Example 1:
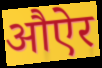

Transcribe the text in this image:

औऐर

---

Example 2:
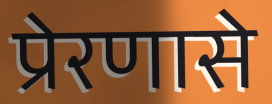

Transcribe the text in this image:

प्रेरणासे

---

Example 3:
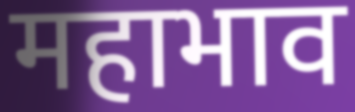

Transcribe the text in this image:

महाभाव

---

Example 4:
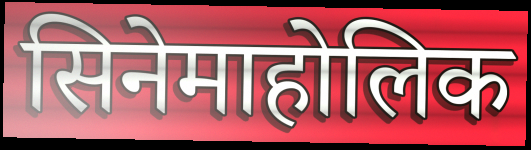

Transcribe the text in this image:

सिनेमाहोलिक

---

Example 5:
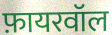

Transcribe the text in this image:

फ़ायरवॉल